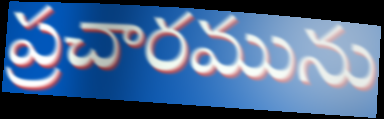
ప్రచారమును